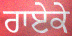
ਰਾਏਕੇ